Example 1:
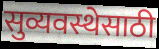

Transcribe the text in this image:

सुव्यवस्थेसाठी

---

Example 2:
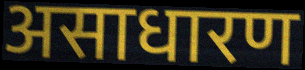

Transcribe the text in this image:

असाधारण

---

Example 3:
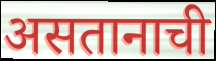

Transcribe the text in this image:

असतानाची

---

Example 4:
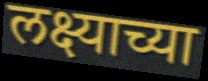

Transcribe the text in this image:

लक्ष्याच्या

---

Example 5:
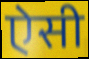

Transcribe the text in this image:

ऐसी